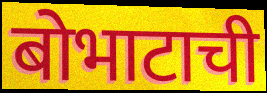
बोभाटाची